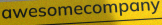
awesomecompany